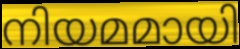
നിയമമായി